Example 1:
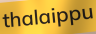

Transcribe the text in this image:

thalaippu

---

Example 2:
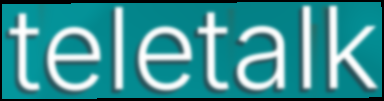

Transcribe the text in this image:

teletalk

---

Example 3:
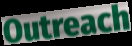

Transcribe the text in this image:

Outreach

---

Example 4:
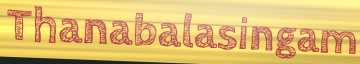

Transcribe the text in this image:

Thanabalasingam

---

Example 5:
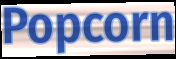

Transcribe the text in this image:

Popcorn